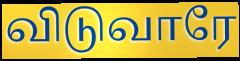
விடுவாரே